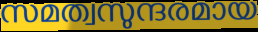
സമത്വസുന്ദരമായ